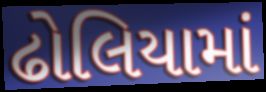
ઢોલિયામાં